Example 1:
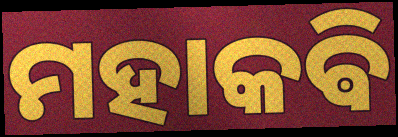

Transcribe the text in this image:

ମହାକଵି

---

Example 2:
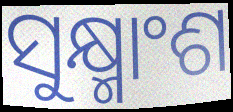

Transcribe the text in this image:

ସୁକ୍ଷ୍ମାଂଶ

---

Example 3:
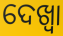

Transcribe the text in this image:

ଦେଖ୍ବା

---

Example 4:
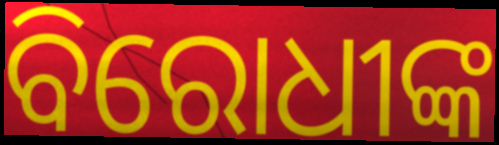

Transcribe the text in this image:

ବିରୋଧୀଙ୍କ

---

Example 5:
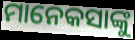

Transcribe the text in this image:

ମାନେକସାଙ୍କୁ